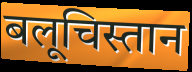
बलूचिस्तान